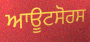
ਆਊਟਸੋਰਸ